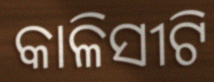
କାଳିସୀଟି